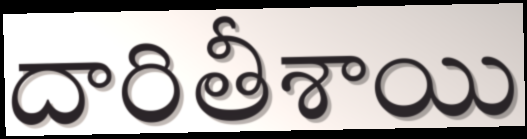
దారితీశాయి